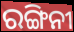
ରଙ୍ଗିନୀ